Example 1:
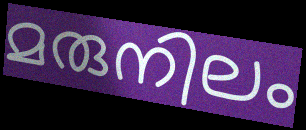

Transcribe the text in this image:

മരുനിലം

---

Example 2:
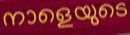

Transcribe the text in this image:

നാളെയുടെ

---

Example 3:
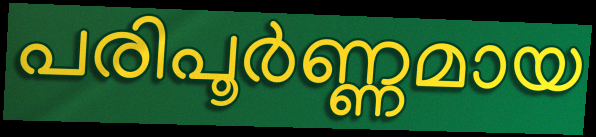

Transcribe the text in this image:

പരിപൂർണ്ണമായ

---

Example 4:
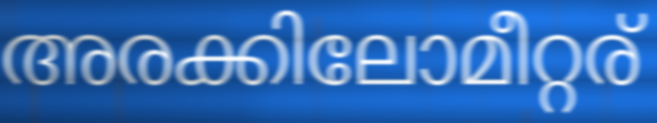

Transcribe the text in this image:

അരക്കിലോമീറ്റര്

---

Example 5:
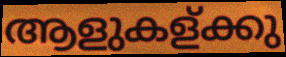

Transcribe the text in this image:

ആളുകള്ക്കു